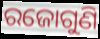
ରଜୋଗୁଣି